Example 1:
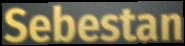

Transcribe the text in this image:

Sebestan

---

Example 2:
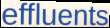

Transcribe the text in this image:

effluents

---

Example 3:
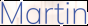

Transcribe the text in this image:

Martin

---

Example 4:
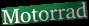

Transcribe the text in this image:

Motorrad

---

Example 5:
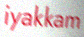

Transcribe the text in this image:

iyakkam